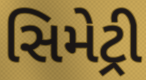
સિમેટ્રી